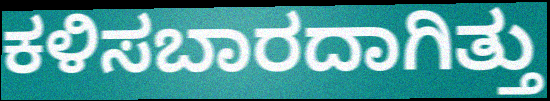
ಕಳಿಸಬಾರದಾಗಿತ್ತು